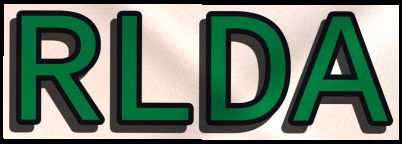
RLDA